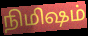
நிமிஷம்